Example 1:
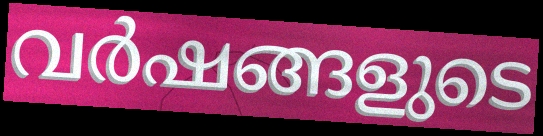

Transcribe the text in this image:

വർഷങ്ങളുടെ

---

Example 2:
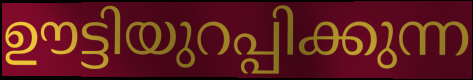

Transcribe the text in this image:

ഊട്ടിയുറപ്പിക്കുന്ന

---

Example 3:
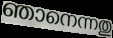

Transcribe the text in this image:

ഞാനെന്നതു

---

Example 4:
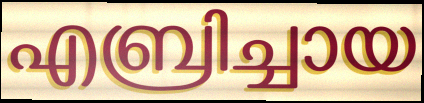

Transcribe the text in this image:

എബ്രിച്ചായ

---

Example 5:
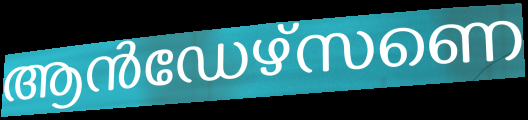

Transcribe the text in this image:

ആൻഡേഴ്സണെ